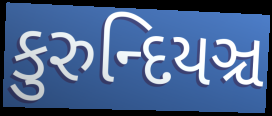
કુરુન્દિયઞ્ચ